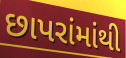
છાપરાંમાંથી